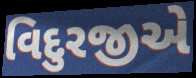
વિદુરજીએ